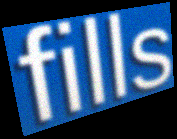
fills